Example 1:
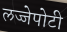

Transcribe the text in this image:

लज्जेपोटी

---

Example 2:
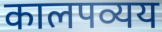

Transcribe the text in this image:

कालपव्यय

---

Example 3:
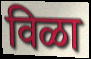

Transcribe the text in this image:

विळा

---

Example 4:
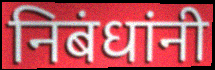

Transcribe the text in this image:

निबंधांनी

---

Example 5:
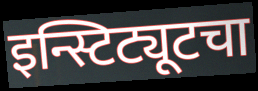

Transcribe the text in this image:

इन्स्टिट्यूटचा